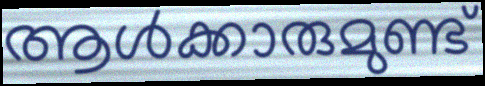
ആൾക്കാരുമുണ്ട്